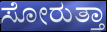
ಸೋರುತ್ತಾ